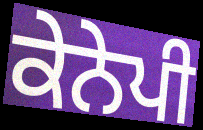
ਕੇਨੇਪੀ